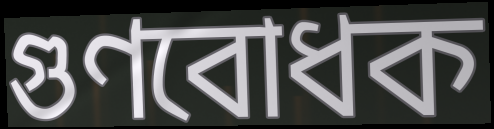
গুণবোধক